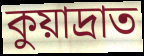
কুয়াদ্রাত